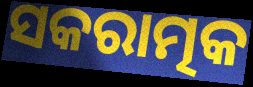
ସକରାତ୍ମକ